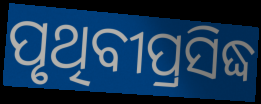
ପୃଥିବୀପ୍ରସିଦ୍ଧ